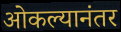
ओकल्यानंतर